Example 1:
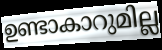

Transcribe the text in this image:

ഉണ്ടാകാറുമില്ല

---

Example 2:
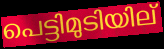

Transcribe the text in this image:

പെട്ടിമുടിയില്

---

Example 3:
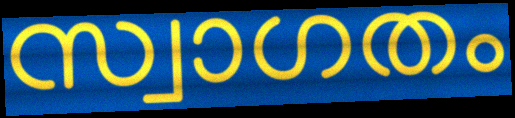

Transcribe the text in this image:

സ്വാഗതം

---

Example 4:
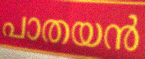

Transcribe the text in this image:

പാതയൻ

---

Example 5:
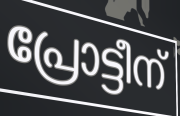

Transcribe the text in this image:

പ്രോട്ടീന്